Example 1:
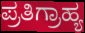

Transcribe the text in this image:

ಪ್ರತಿಗ್ರಾಹ್ಯ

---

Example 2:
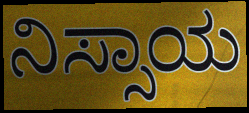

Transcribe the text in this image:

ನಿಸ್ಸಾಯ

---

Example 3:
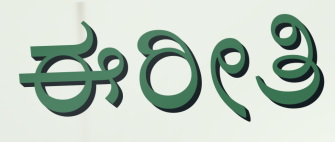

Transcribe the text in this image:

ಈರೀತಿ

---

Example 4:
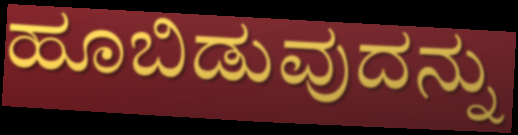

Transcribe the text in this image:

ಹೂಬಿಡುವುದನ್ನು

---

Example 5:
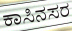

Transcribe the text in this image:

ಕಾಸಿನಸರ